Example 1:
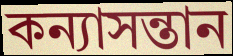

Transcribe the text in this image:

কন্যাসন্তান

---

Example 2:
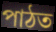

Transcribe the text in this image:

পাঠত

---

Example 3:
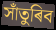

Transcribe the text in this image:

সাঁতুৰিব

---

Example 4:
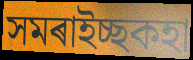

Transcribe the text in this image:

সমৰাইচ্ছকহা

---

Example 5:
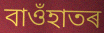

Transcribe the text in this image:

বাওঁহাতৰ